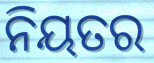
ନିୟତର